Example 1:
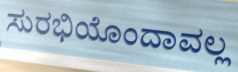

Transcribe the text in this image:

ಸುರಭಿಯೊಂದಾವಲ್ಲ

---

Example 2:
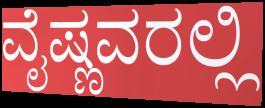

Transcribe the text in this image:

ವೈಷ್ಣವರಲ್ಲಿ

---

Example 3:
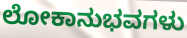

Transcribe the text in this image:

ಲೋಕಾನುಭವಗಳು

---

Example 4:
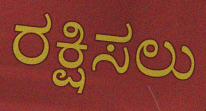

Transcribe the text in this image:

ರಕ್ಷಿಸಲು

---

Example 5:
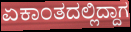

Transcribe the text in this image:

ಏಕಾಂತದಲ್ಲಿದ್ದಾಗ